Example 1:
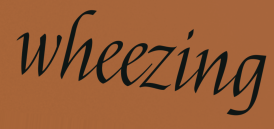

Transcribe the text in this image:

wheezing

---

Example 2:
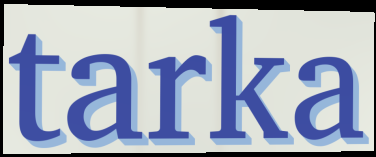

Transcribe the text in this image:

tarka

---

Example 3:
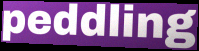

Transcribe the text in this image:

peddling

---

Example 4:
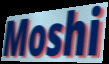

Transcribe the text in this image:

Moshi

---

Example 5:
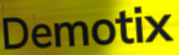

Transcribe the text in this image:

Demotix